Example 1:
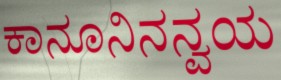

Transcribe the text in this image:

ಕಾನೂನಿನನ್ವಯ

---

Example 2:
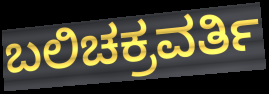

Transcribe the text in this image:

ಬಲಿಚಕ್ರವರ್ತಿ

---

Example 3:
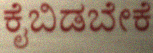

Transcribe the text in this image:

ಕೈಬಿಡಬೇಕೆ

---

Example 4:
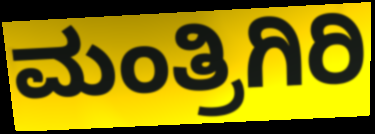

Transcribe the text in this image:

ಮಂತ್ರಿಗಿರಿ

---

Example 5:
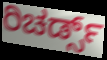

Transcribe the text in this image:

ರಿಚರ್ಡ್ಸ್